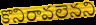
కొనిరావలెనని